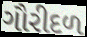
ગૌરીદળ